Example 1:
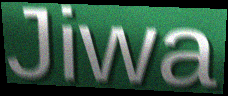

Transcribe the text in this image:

Jiwa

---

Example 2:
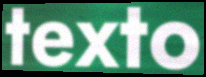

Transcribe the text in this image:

texto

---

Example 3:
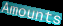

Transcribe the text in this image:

Amounts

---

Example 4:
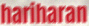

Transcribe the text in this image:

hariharan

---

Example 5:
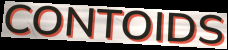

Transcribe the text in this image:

CONTOIDS